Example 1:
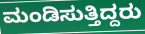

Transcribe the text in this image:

ಮಂಡಿಸುತ್ತಿದ್ದರು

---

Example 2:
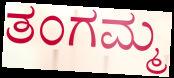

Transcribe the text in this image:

ತಂಗಮ್ಮ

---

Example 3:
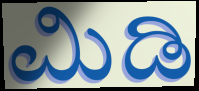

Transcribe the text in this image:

ಮಿಡಿ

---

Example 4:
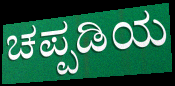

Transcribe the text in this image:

ಚಪ್ಪಡಿಯ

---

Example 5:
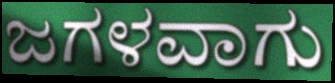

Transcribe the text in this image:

ಜಗಳವಾಗು